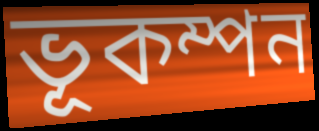
ভূকম্পন